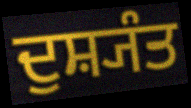
ਦੁਸ਼੍ਯੰਤ